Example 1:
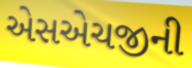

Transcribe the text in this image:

એસએચજીની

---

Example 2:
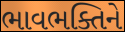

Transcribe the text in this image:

ભાવભક્તિને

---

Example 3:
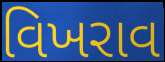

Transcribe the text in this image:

વિખરાવ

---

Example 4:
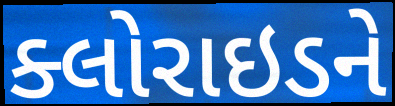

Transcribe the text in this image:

ક્લોરાઇડને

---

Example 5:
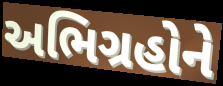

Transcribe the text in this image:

અભિગ્રહોને